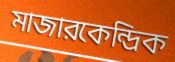
মাজারকেন্দ্রিক